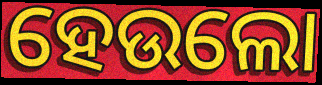
ହେଉଲୋ